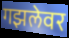
गझलेवर